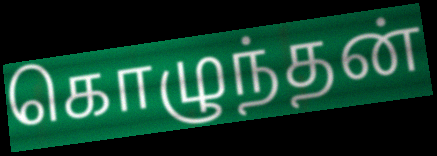
கொழுந்தன்